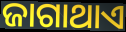
ଜାଗାଥାଏ